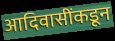
आदिवासींकडून